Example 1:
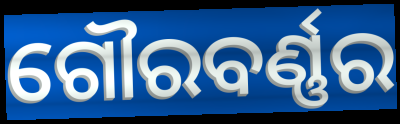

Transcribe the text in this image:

ଗୌରବର୍ଣ୍ଣର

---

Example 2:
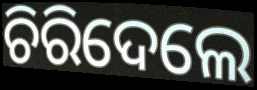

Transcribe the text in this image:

ଚିରିଦେଲେ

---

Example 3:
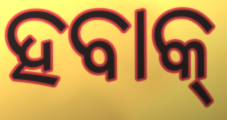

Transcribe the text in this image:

ହବାକ୍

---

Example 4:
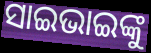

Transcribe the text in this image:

ସାଇଭାଇଙ୍କୁ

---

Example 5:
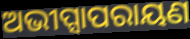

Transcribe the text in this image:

ଅଭୀପ୍ସାପରାୟଣ